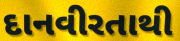
દાનવીરતાથી